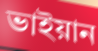
ভাইয়ান